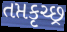
તપ્તકૃચ્છ્ર